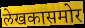
लेखकासमोर